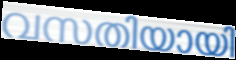
വസതിയായി